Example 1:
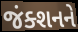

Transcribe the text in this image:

જંક્શનને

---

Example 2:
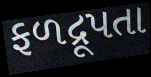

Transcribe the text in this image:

ફળદ્રૂપતા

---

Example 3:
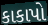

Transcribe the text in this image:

કાકાપો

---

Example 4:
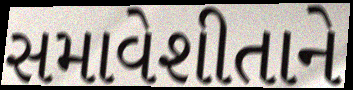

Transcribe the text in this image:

સમાવેશીતાને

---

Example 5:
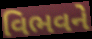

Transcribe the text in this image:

વિભવને